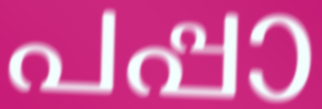
പപ്പാ